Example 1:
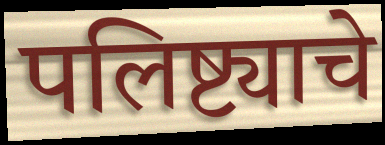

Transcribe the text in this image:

पलिष्ट्याचे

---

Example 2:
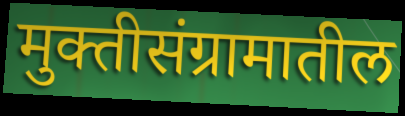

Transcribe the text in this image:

मुक्तीसंग्रामातील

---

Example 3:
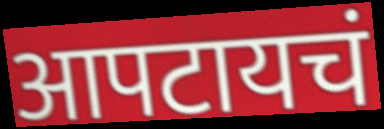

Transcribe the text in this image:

आपटायचं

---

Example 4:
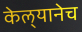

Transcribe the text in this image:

केल्यानेच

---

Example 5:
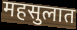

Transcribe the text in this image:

महसुलात